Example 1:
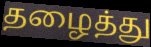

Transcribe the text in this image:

தழைத்து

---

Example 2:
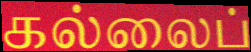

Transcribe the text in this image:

கல்லைப்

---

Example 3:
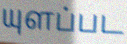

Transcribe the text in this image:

யுளப்பட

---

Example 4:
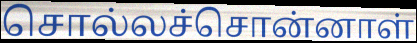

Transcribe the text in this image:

சொல்லச்சொன்னாள்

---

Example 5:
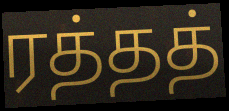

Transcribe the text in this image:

ரத்தத்